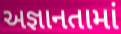
અજ્ઞાનતામાં